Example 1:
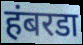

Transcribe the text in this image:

हंबरडा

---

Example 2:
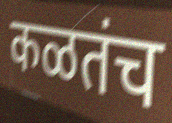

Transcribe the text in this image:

कळतंच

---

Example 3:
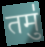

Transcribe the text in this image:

तमु॑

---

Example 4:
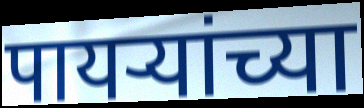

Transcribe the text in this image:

पायर्‍यांच्या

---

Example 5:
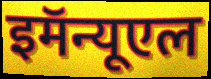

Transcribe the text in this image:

इमॅन्यूएल